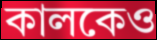
কালকেও